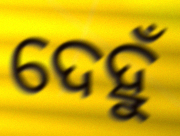
ଦେହୁଁ